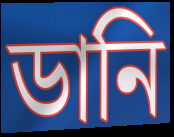
ডানি